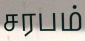
சரபம்